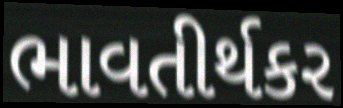
ભાવતીર્થકર